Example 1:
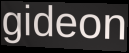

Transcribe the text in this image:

gideon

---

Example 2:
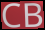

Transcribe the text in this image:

CB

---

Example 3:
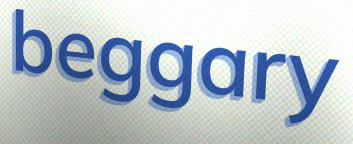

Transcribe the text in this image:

beggary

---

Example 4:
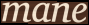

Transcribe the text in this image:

mane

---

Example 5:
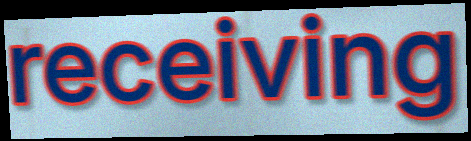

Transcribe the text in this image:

receiving